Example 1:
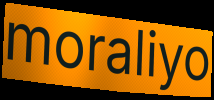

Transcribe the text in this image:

moraliyo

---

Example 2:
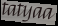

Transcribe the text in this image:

tatyaa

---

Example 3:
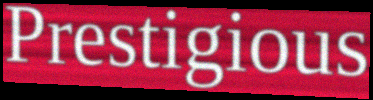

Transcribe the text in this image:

Prestigious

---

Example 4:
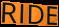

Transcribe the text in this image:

RIDE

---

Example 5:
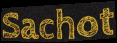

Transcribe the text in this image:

Sachot